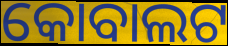
କୋବାଲଟ